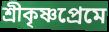
শ্রীকৃষ্ণপ্রেমে